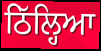
ਠਿੱਲ੍ਹਿਆ